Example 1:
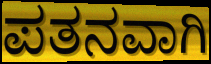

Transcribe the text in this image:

ಪತನವಾಗಿ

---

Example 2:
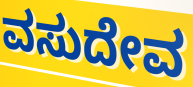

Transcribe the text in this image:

ವಸುದೇವ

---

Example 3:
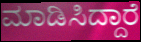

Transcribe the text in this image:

ಮಾಡಿಸಿದ್ದಾರೆ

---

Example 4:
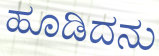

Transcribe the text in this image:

ಹೂಡಿದನು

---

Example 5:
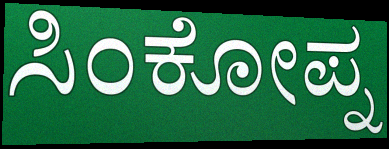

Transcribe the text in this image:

ಸಿಂಕೋಪ್ನ